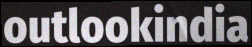
outlookindia